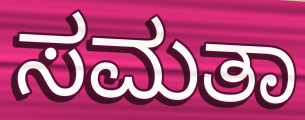
ಸಮತಾ